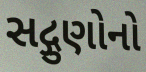
સદ્ગુણોનો